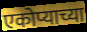
एकोप्याच्या